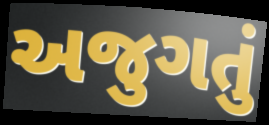
અજુગતું